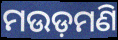
ମଉଡ଼ମଣି